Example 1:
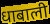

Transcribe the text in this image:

धाबाली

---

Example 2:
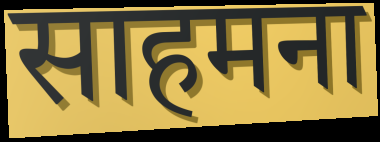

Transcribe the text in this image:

साहमना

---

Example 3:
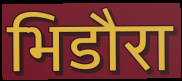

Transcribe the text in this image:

भिडौरा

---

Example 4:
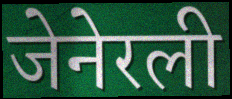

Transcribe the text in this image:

जेनेरली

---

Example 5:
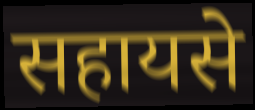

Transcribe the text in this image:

सहायसे